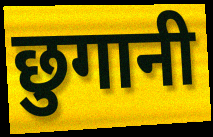
छुगानी